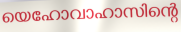
യെഹോവാഹാസിന്റെ